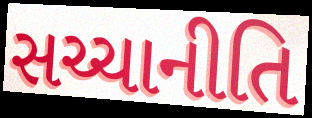
સચ્ચાનીતિ